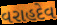
વરાહદેવ